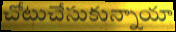
చోటుచేసుకున్నాయా